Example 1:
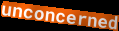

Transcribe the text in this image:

unconcerned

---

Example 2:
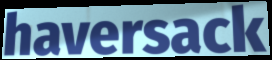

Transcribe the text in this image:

haversack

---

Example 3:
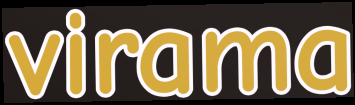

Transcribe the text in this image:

virama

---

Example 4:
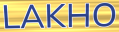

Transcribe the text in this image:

LAKHO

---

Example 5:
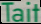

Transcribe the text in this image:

Tait